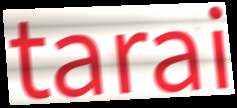
tarai